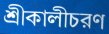
শ্রীকালীচরণ